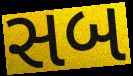
સબ